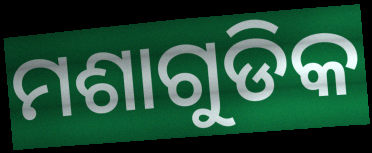
ମଶାଗୁଡିକ